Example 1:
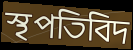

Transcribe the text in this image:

স্থপতিবিদ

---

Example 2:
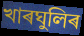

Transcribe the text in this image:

খাৰঘুলিৰ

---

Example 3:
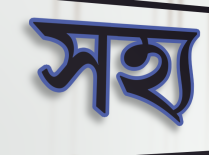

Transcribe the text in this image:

সহ্য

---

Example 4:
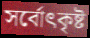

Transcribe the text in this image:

সৰ্বোৎকৃষ্ট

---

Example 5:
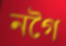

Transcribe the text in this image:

নগৈ